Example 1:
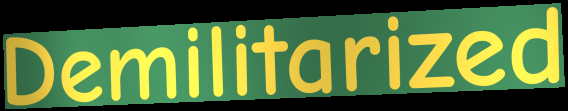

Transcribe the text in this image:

Demilitarized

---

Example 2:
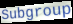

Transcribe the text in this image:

Subgroup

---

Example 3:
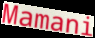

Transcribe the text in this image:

Mamani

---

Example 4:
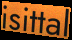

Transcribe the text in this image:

isittal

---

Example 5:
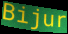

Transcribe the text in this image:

Bijur